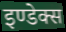
इण्डेक्स